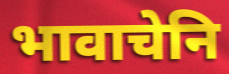
भावाचेनि